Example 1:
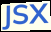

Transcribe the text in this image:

JSX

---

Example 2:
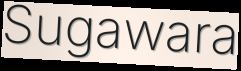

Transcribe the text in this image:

Sugawara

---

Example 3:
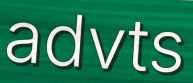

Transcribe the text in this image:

advts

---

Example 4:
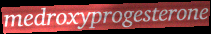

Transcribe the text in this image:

medroxyprogesterone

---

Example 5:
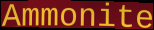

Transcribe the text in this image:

Ammonite